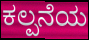
ಕಲ್ಪನೆಯ